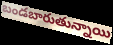
బండబారుతున్నాయి